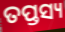
ତପ୍ତସ୍ୟ